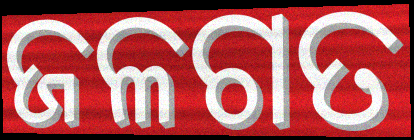
ଜଳଗତ